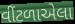
વીંટળાએલા